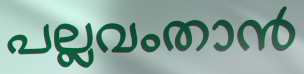
പല്ലവംതാൻ